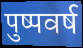
पुष्पवर्ष